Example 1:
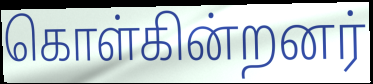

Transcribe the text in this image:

கொள்கின்றனர்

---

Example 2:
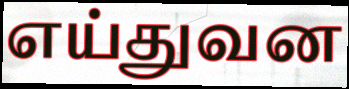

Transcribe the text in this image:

எய்துவன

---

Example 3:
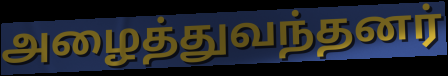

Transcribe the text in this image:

அழைத்துவந்தனர்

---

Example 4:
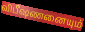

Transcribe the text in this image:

விபீஷணனையும்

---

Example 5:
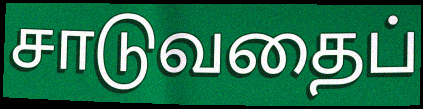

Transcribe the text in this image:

சாடுவதைப்